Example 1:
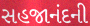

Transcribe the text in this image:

સહજાનંદની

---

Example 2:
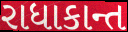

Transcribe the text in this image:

રાધાકાન્ત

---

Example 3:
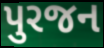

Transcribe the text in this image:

પુરજન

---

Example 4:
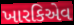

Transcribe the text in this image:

ખારકિએવ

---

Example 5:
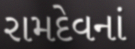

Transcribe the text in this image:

રામદેવનાં